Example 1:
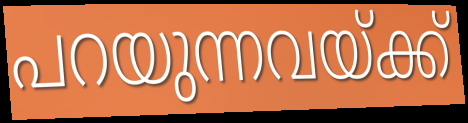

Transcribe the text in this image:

പറയുന്നവയ്ക്ക്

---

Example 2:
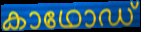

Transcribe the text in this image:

കാഥോഡ്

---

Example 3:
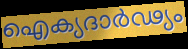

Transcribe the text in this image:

ഐക്യദാർഢ്യം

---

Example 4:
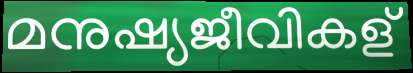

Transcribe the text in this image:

മനുഷ്യജീവികള്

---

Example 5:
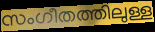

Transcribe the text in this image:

സംഗീതത്തിലുള്ള